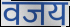
वजय